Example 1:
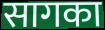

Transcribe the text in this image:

सागका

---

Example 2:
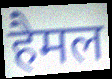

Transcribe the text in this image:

हैमल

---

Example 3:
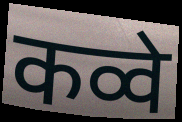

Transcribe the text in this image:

कव्वे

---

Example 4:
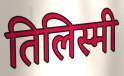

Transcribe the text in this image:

तिलिस्मी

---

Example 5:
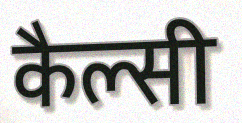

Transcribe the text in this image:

कैल्सी